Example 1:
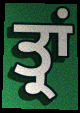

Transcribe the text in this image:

ਤ੍ਰਾਂ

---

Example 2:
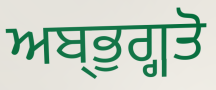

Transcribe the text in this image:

ਅਬ੍ਭੁਗ੍ਗਤੋ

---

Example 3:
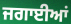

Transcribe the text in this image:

ਜਗਾਈਆਂ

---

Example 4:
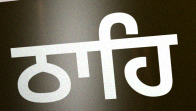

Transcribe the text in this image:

ਠਾਹਿ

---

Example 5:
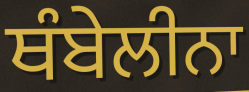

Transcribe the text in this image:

ਥੰਬੇਲੀਨਾ